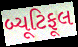
બ્યૂટિફૂલ